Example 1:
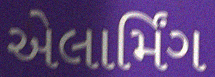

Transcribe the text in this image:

એલાર્મિંગ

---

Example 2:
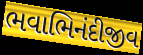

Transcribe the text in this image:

ભવાભિનંદીજીવ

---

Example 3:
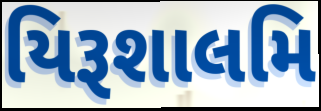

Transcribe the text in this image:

યિરૂશાલમિ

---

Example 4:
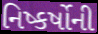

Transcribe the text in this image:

નિષ્કર્ષોની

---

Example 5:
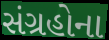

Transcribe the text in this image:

સંગ્રહોના